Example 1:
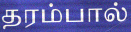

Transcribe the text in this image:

தரம்பால்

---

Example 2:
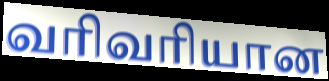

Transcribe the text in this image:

வரிவரியான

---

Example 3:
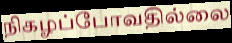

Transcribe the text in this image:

நிகழப்போவதில்லை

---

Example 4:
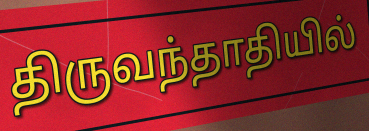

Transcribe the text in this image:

திருவந்தாதியில்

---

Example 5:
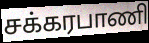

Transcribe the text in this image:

சக்கரபாணி